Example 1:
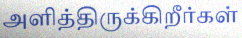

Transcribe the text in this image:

அளித்திருக்கிறீர்கள்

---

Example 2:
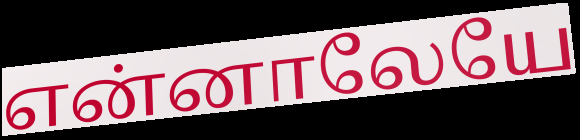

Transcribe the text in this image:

என்னாலேயே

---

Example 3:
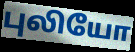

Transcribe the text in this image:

புலியோ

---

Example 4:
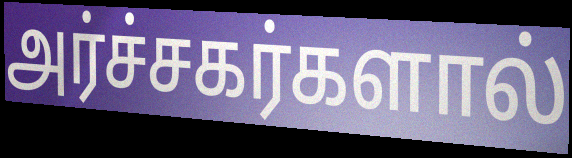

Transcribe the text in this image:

அர்ச்சகர்களால்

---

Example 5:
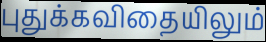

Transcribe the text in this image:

புதுக்கவிதையிலும்